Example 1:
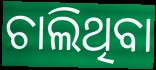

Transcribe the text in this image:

ଚାଲିଥିବା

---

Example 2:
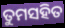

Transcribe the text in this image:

ତୁମସହିତ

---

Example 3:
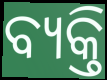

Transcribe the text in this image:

ବ୍ୟକ୍ତି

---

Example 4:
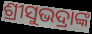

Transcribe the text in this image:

ଶ୍ରୀସୁଭଦ୍ରାଙ୍କ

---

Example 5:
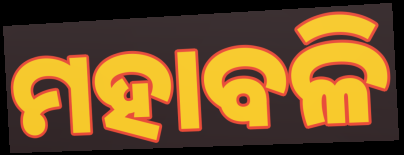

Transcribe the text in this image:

ମହାବଳି